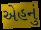
એહનું